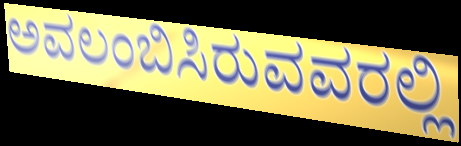
ಅವಲಂಬಿಸಿರುವವರಲ್ಲಿ